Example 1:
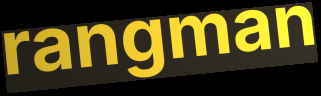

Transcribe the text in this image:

rangman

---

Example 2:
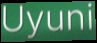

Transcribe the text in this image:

Uyuni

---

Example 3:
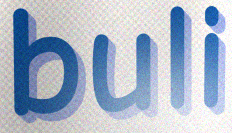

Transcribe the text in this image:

buli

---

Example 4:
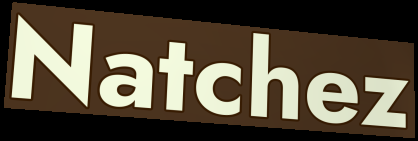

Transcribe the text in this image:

Natchez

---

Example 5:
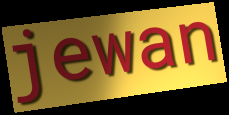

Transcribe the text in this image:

jewan